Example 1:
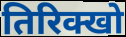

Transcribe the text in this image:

तिरिक्खो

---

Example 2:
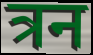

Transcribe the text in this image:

त्रन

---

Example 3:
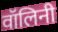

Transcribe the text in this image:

वॉलिनी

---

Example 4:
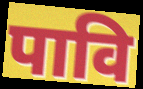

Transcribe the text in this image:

पावि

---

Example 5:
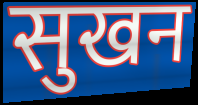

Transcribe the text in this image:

सुखन